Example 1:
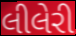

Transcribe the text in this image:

લીલેરી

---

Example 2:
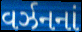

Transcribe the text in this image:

વર્ઝનનાં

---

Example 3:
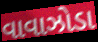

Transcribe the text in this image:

વાવાઝોડા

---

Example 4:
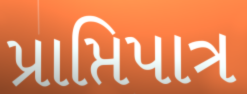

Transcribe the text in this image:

પ્રાપ્તિપાત્ર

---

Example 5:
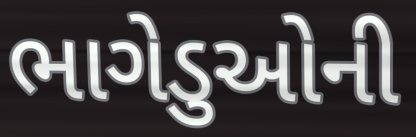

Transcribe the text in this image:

ભાગેડુઓની